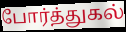
போர்த்துகல்